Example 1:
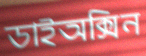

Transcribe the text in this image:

ডাইঅক্সিন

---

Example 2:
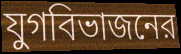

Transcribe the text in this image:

যুগবিভাজনের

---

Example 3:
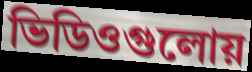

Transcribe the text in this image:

ভিডিওগুলোয়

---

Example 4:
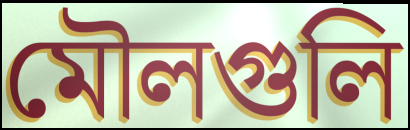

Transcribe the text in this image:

মৌলগুলি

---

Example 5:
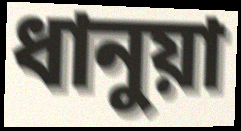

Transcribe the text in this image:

ধানুয়া